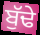
ਬੁੱਢੇ